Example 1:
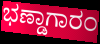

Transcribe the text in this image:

ಭಣ್ಡಾಗಾರಂ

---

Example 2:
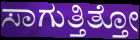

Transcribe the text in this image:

ಸಾಗುತ್ತಿತ್ತೋ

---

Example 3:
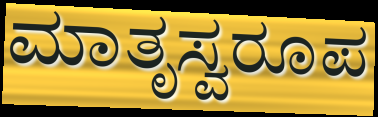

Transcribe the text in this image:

ಮಾತೃಸ್ವರೂಪ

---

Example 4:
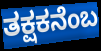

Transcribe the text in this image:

ತಕ್ಷಕನೆಂಬ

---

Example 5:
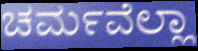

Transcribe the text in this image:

ಚರ್ಮವೆಲ್ಲಾ